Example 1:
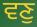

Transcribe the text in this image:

ਵਣੁ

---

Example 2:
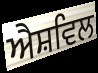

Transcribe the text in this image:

ਐਸ਼ਵਿਲ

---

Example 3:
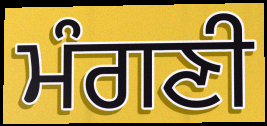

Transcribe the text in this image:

ਮੰਗਣੀ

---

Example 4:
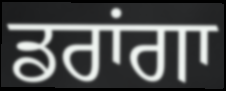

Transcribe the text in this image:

ਡਰਾਂਗਾ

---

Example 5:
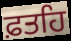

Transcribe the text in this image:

ਫ਼ਤਹਿ